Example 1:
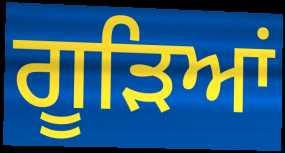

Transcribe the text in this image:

ਗੂੜਿਆਂ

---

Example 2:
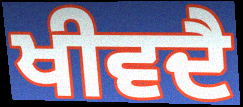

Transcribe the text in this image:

ਖੀਵਦੈ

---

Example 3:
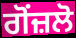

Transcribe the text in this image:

ਗੋਂਜ਼ਲੋ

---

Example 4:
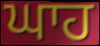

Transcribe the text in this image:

ਘਾਹ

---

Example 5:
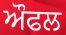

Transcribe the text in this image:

ਔਫਲ